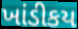
ખાંડીકય